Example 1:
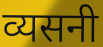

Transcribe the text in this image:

व्यसनी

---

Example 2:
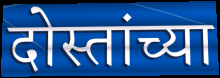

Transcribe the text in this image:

दोस्तांच्या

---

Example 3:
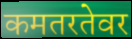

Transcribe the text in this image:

कमतरतेवर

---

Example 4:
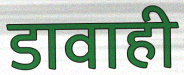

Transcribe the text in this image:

डावाही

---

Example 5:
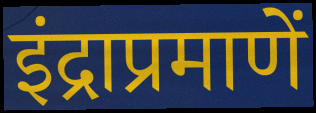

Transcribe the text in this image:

इंद्राप्रमाणें